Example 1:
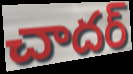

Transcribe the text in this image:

చాదర్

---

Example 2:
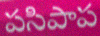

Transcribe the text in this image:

పసిపాప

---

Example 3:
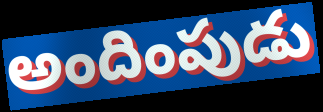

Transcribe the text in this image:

అందింపుడు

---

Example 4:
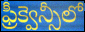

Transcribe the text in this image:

ఫ్రీక్వెన్సీలో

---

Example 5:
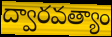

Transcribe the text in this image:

ద్వారవత్యాం